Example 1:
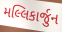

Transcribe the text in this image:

મલ્લિકાર્જુન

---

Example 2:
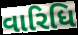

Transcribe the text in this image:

વારિધિ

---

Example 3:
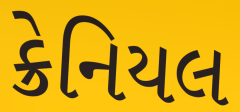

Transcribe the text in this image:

ક્રેનિયલ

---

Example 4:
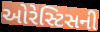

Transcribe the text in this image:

ઓરેસ્ટિસની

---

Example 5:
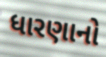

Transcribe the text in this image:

ધારણાનો